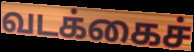
வடக்கைச்